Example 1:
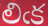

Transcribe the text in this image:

లిఁక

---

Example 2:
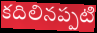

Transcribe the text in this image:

కదిలినప్పటి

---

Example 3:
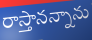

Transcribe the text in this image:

రాస్తానన్నాను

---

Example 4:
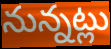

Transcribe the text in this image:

నున్నట్లు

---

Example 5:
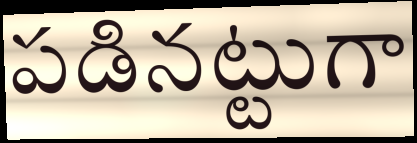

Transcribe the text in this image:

పడినట్టుగా